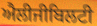
ਐਲੀਜੀਬਿਲਟੀ